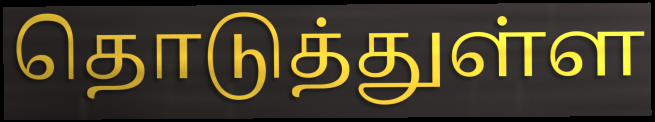
தொடுத்துள்ள